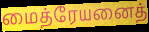
மைத்ரேயனைத்